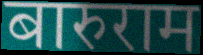
बारुराम